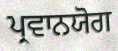
ਪ੍ਰਵਾਨਯੋਗ